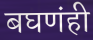
बघणंही